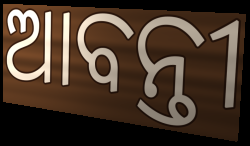
ଆବନ୍ତୀ